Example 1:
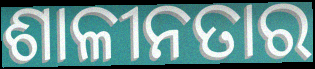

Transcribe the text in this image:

ଶାଳୀନତାର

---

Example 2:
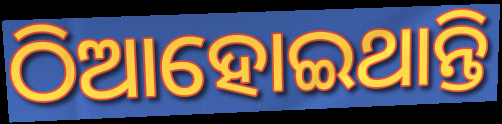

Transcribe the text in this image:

ଠିଆହୋଇଥାନ୍ତି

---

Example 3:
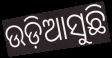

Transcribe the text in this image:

ଉଡ଼ିଆସୁଛି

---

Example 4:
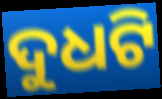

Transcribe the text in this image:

ଦୁଧଟି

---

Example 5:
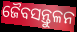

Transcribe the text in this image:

ଜୈବସନ୍ତୁଳନ